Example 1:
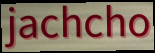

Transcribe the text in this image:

jachcho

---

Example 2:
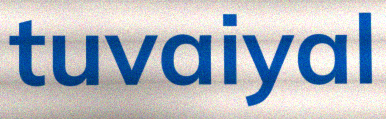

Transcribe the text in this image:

tuvaiyal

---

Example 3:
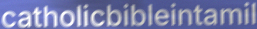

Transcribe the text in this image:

catholicbibleintamil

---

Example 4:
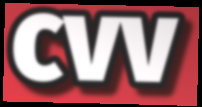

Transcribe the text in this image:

cvv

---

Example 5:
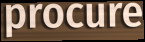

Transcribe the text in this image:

procure